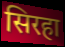
सिरहा